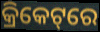
କ୍ରିକେଟ୍‌ରେ